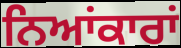
ਨਿਆਂਕਾਰਾਂ